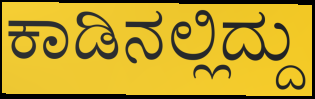
ಕಾಡಿನಲ್ಲಿದ್ದು